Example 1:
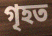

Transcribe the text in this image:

গৃহত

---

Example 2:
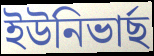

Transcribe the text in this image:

ইউনিভাৰ্ছ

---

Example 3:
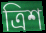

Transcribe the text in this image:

ত্ৰিশ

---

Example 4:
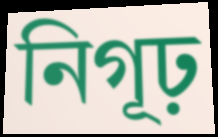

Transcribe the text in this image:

নিগূঢ়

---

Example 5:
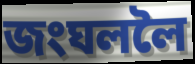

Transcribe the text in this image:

জংঘললৈ